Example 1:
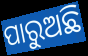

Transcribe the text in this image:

ପାରୁଅଛି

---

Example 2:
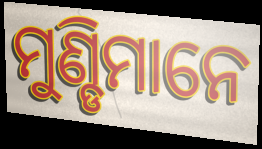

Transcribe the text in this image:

ମୁଣ୍ଡିମାନେ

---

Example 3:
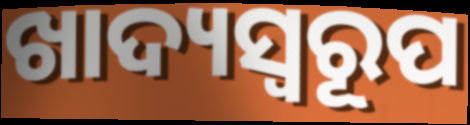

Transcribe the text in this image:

ଖାଦ୍ୟସ୍ୱରୂପ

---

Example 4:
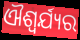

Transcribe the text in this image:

ଐଶ୍ୱର୍ଯ୍ୟର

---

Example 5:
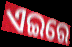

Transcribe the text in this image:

ଏଇରେ